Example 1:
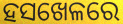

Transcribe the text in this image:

ହସଖେଳରେ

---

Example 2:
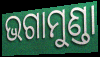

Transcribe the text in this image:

ଭଗାମୁଣ୍ଡା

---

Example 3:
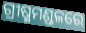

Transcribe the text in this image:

ଗ୍ରୀଷ୍ମମଣ୍ଡଳରେ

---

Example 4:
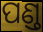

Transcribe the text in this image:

ପଣ୍ଡ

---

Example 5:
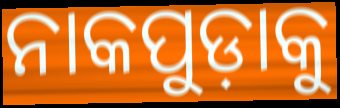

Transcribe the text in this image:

ନାକପୁଡ଼ାକୁ